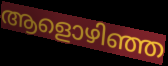
ആളൊഴിഞ്ഞ